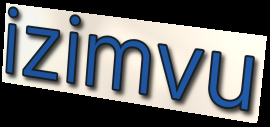
izimvu